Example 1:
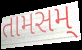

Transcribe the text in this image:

તામસમ્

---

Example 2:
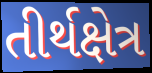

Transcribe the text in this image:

તીર્થક્ષેત્ર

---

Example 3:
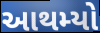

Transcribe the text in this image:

આથમ્યો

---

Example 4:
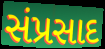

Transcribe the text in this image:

સંપ્રસાદ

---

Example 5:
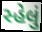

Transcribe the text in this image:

સ્હેલું